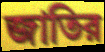
জাতির